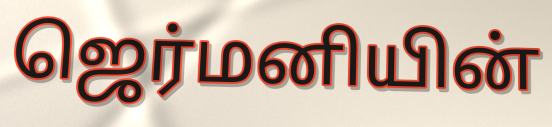
ஜெர்மனியின்